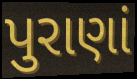
પુરાણાં